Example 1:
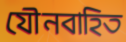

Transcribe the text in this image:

যৌনবাহিত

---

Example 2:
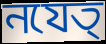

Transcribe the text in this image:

নযেত্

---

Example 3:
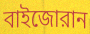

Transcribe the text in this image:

বাইজোরান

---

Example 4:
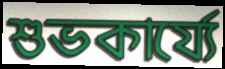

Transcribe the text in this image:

শুভকার্য্যে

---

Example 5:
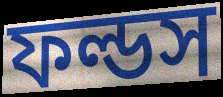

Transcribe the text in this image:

ফল্ডস